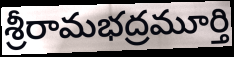
శ్రీరామభద్రమూర్తి